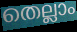
തെല്ലാം